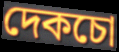
দেকচো